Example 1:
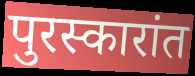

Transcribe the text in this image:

पुरस्कारांत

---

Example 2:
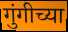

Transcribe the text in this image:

गुंगीच्या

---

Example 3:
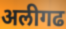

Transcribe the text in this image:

अलीगढ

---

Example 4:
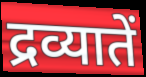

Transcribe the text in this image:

द्रव्यातें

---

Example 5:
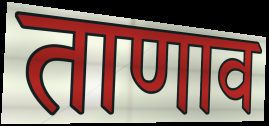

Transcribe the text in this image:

ताणाव